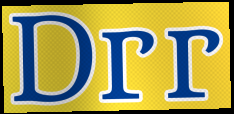
Drr